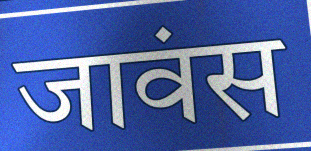
जावंस